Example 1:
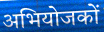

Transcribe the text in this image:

अभियोजकों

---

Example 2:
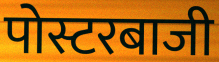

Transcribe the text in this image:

पोस्टरबाजी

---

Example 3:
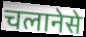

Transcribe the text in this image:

चलानेसे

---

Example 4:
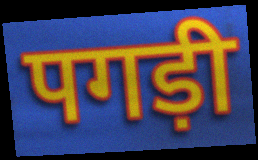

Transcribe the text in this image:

पगड़ी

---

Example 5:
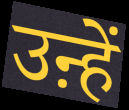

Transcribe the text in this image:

उऩ्हें